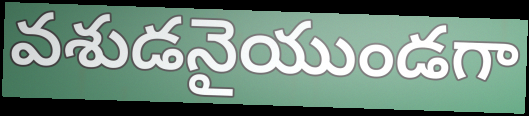
వశుడనైయుండగా